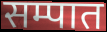
सम्पात